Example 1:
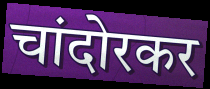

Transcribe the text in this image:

चांदोरकर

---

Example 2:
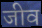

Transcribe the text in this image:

जीव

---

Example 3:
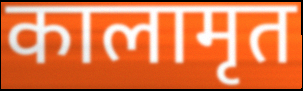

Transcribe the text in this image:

कालामृत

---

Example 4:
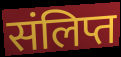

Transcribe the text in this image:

संलिप्त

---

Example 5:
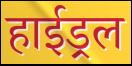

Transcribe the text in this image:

हाईड्रल